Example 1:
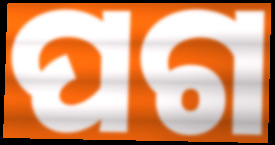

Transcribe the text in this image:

ପଗ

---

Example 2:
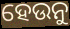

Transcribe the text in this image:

ହେଉନୁ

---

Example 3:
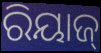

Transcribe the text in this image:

ରିୟାଜ୍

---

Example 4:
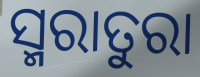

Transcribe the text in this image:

ସ୍ମରାତୁରା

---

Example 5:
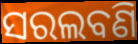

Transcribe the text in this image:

ସରଲବଣି